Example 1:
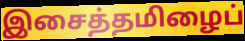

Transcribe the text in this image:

இசைத்தமிழைப்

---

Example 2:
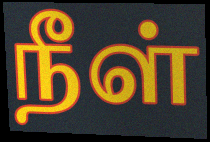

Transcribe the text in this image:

நீள்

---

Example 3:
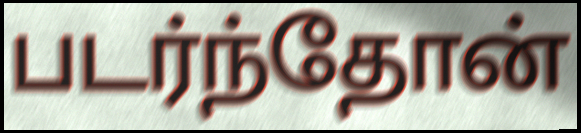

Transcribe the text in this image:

படர்ந்தோன்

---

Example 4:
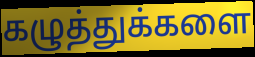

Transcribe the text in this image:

கழுத்துக்களை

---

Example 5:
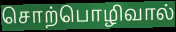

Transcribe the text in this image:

சொற்பொழிவால்